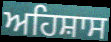
ਅਹਿਸ਼ਾਸ